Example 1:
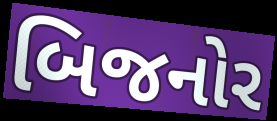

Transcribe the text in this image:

બિજનોર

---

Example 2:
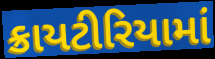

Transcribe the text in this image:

ક્રાયટીરિયામાં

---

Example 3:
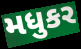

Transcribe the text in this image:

મધુકર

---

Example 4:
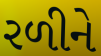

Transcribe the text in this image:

રળીને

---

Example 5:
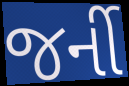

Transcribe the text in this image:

જર્ની